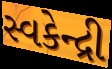
સ્વકેન્દ્રી